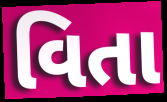
વિતા